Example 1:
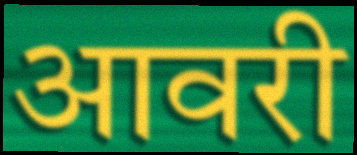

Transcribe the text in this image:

आवरी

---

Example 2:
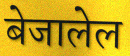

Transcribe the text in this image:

बेजालेल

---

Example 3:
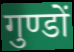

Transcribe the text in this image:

गुण्डों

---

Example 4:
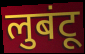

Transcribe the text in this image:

लुबंटू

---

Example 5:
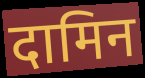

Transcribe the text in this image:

दामिन